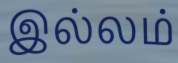
இல்லம்